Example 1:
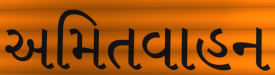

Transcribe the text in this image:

અમિતવાહન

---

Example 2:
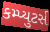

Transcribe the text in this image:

કમ્પ્યુટર્સ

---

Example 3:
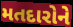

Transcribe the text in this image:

મતદારોને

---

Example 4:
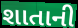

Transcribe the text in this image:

શાતાની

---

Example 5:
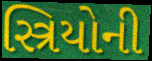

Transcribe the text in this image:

સ્ત્રિયોની